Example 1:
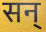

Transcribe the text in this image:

सन्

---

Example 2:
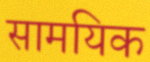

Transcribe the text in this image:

सामयिक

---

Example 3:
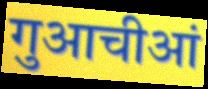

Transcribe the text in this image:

गुआचीआं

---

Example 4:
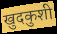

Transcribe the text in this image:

खुदकुशी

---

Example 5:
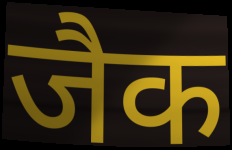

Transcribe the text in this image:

जैक